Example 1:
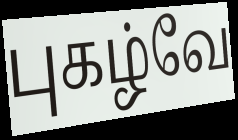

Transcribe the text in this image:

புகழ்வே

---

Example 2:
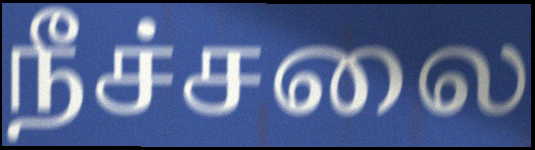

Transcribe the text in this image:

நீச்சலை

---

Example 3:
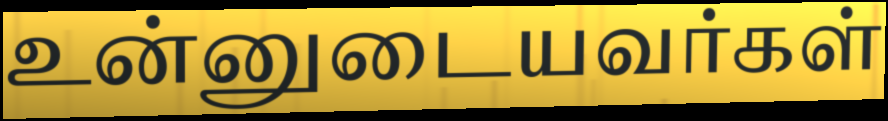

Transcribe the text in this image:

உன்னுடையவர்கள்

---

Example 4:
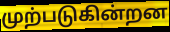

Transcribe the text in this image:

முற்படுகின்றன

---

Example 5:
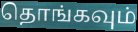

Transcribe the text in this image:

தொங்கவும்